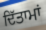
ਦਿੱਤਾਮਾਂ